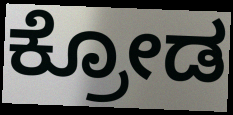
ಕ್ರೋಡ